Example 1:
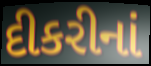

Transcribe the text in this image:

દીકરીનાં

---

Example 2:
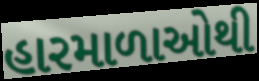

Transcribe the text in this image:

હારમાળાઓથી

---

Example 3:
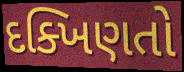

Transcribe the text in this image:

દક્ખિણતો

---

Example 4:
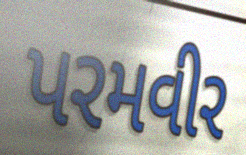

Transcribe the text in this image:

પરમવીર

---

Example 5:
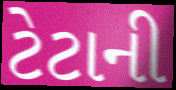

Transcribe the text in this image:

ટેટાની